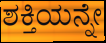
ಶಕ್ತಿಯನ್ನೇ